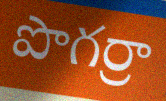
పొగర్రా